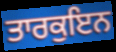
ਤਾਰਕੁਇਨ